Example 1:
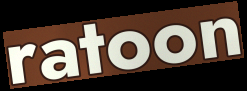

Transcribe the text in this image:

ratoon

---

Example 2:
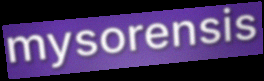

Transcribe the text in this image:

mysorensis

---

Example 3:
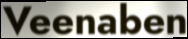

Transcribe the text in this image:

Veenaben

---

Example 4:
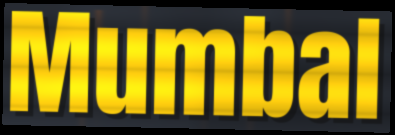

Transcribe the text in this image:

Mumbal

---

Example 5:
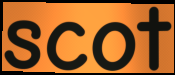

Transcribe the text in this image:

scot